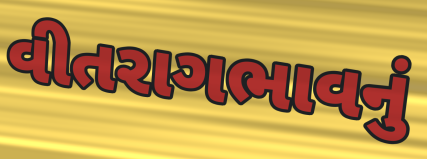
વીતરાગભાવનું